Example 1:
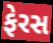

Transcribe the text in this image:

ફેરસ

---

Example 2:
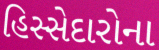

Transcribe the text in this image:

હિસ્સેદારોના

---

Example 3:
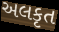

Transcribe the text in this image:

અલકૃત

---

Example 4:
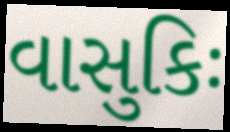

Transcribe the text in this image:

વાસુકિઃ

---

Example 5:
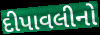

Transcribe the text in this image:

દીપાવલીનો